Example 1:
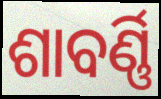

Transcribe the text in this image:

ଶାବର୍ଣ୍ଣି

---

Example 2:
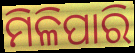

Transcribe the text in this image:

ମିଳିପାରି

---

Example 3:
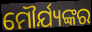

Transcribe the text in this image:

ମୌର୍ଯ୍ୟଙ୍କର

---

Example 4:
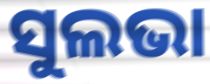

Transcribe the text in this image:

ସୁଲଭା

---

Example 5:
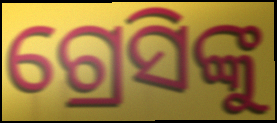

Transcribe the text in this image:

ଗ୍ରେସିଙ୍କୁ